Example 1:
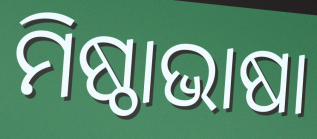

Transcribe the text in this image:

ମିଷ୍ଠାଭାଷା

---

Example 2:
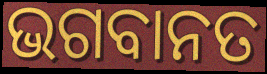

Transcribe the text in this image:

ଭଗବାନତ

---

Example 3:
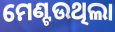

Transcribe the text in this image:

ମେଣ୍ଟଉଥିଲା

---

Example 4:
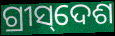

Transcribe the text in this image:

ଗ୍ରୀସ୍‌ଦେଶ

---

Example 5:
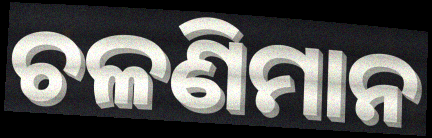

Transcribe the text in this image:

ଚଳଣିମାନ